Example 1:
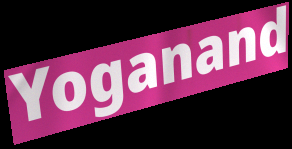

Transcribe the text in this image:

Yoganand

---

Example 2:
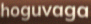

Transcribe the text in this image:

hoguvaga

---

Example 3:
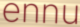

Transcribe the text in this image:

ennu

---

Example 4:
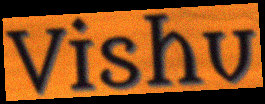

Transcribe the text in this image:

Vishu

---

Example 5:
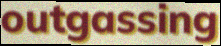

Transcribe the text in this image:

outgassing